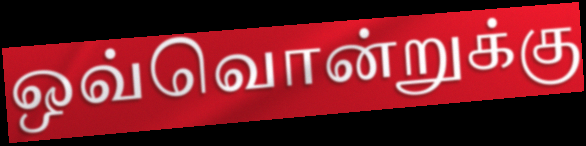
ஒவ்வொன்றுக்கு